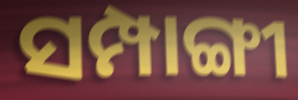
ସମ୍ପାଙ୍ଗୀ